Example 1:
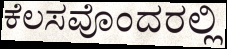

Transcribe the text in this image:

ಕೆಲಸವೊಂದರಲ್ಲಿ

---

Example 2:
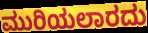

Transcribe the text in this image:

ಮುರಿಯಲಾರದು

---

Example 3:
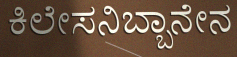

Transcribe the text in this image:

ಕಿಲೇಸನಿಬ್ಬಾನೇನ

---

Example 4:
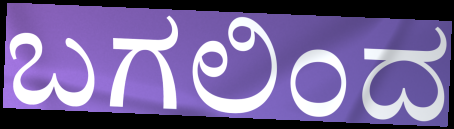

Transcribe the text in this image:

ಬಗಲಿಂದ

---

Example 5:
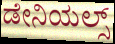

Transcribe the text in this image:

ಡೇನಿಯಲ್ಸ್